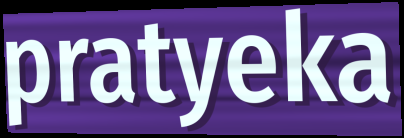
pratyeka